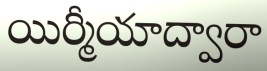
యిర్మీయాద్వారా